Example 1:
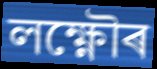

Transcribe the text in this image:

লক্ষ্ণৌৰ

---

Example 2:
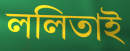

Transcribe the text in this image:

ললিতাই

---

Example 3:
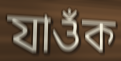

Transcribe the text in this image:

যাওঁক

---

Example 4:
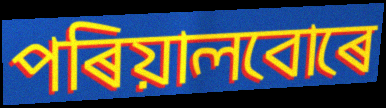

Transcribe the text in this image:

পৰিয়ালবোৰে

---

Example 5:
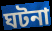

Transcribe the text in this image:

ঘটনা